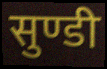
सुण्डी